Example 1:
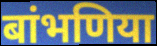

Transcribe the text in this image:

बांभणिया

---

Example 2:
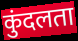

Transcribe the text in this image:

कुंदलता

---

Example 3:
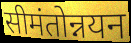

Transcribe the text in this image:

सीमंतोन्नयन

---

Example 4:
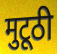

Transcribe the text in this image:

मुटूठी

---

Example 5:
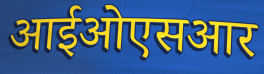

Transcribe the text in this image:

आईओएसआर